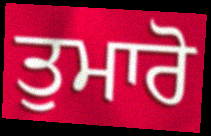
ਤੁਮਾਰੋ